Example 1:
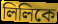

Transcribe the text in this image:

লিলিকে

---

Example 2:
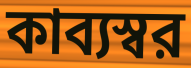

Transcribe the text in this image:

কাব্যস্বর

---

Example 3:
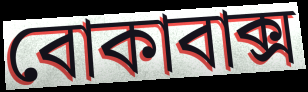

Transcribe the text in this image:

বোকাবাক্স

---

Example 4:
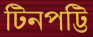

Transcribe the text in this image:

টিনপট্টি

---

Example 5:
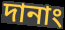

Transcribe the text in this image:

দানাং